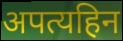
अपत्यहिन